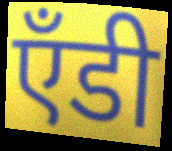
ऍंडी